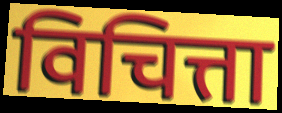
विचित्ता